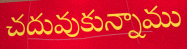
చదువుకున్నాము